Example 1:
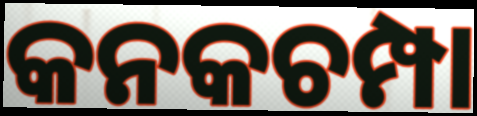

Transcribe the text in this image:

କନକଚମ୍ପା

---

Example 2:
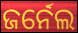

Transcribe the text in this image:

ଜର୍ନେଲ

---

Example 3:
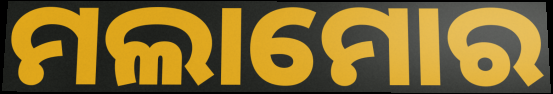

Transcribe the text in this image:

ମଲାମୋର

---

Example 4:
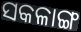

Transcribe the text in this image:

ସକଳାଙ୍ଗ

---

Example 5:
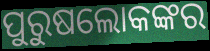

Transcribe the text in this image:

ପୁରୁଷଲୋକଙ୍କର